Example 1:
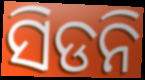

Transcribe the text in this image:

ସିଡନି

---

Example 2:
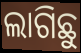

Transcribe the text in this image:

ଲାଗିଛୁ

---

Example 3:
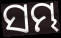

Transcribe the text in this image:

ସମ୍ଭ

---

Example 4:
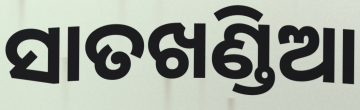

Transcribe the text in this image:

ସାତଖଣ୍ଡିଆ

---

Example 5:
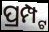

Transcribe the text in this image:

ପ୍ରମ୍ପ୍ଟ